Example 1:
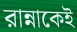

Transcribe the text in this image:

রান্নাকেই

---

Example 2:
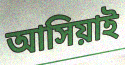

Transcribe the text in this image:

আসিয়াই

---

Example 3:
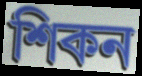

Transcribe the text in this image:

শিকন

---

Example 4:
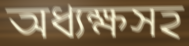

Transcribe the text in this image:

অধ্যক্ষসহ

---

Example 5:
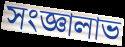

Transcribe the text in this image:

সংজ্ঞালাভ